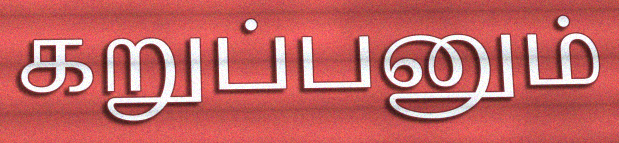
கறுப்பனும்